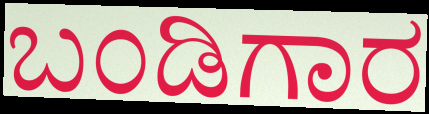
ಬಂಡಿಗಾರ